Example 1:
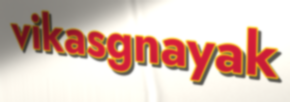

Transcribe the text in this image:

vikasgnayak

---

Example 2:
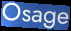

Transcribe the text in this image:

Osage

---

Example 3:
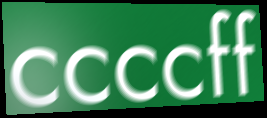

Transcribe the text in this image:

ccccff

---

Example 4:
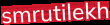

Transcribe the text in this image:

smrutilekh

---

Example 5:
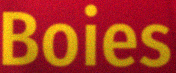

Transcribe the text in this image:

Boies